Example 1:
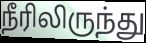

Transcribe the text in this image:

நீரிலிருந்து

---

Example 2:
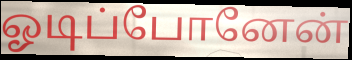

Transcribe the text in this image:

ஓடிப்போனேன்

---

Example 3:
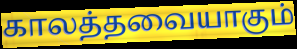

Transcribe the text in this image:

காலத்தவையாகும்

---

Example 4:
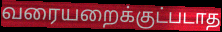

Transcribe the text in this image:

வரையறைக்குட்படாத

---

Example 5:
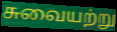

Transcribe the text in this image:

சுவையற்று